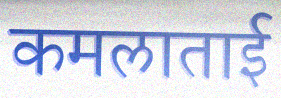
कमलाताई